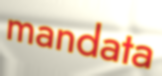
mandata